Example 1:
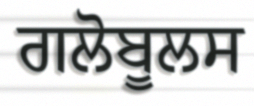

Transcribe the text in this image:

ਗਲੋਬੂਲਸ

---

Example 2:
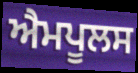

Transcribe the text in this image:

ਐਮਪੂਲਸ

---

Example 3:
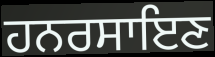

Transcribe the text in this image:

ਹਨਰਸਾਇਣ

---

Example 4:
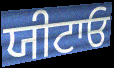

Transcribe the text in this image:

ਯੀਟਾਓ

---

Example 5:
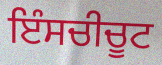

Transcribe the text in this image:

ਇੰਸਚੀਚੂਟ